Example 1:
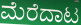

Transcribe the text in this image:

ಮೆರೆದಾಟ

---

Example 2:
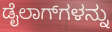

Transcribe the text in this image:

ಡೈಲಾಗ್‌ಗಳನ್ನು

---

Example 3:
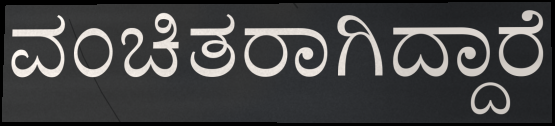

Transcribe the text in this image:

ವಂಚಿತರಾಗಿದ್ದಾರೆ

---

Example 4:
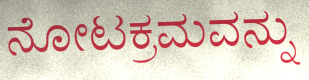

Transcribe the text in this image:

ನೋಟಕ್ರಮವನ್ನು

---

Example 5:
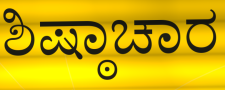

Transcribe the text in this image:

ಶಿಷ್ಠಾಚಾರ